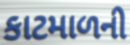
કાટમાળની